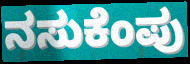
ನಸುಕೆಂಪು